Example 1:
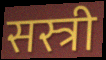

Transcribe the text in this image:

सस्त्री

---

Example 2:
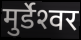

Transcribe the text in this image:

मुर्डेश्वर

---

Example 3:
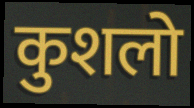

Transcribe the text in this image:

कुशलो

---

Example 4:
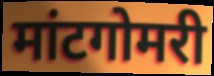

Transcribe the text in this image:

मांटगोमरी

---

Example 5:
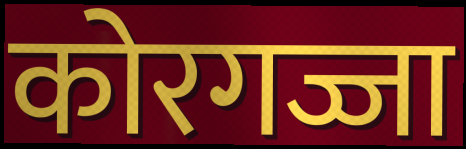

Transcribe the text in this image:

कोरगज्जा